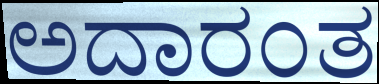
ಅದಾರಂತ